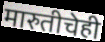
मारुतीचेही